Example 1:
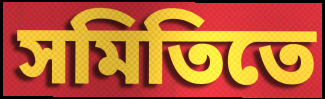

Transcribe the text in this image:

সমিতিতে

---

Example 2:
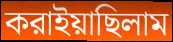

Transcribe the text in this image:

করাইয়াছিলাম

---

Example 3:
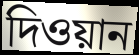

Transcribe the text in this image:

দিওয়ান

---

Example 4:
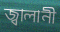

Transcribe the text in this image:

জ্বালানী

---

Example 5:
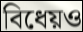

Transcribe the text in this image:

বিধেয়ও